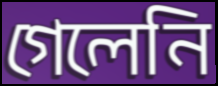
গেলেনি